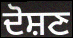
ਦੋਸ਼ਣ